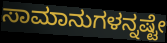
ಸಾಮಾನುಗಳನ್ನಷ್ಟೇ